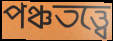
পঞ্চতত্ত্বে